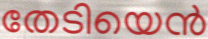
തേടിയെൻ